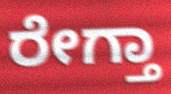
ರೇಗ್ತಾ